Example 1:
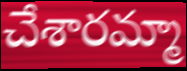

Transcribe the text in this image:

చేశారమ్మా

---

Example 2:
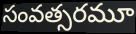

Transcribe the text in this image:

సంవత్సరమూ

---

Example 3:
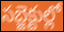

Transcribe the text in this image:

సబ్జెక్టుల్లో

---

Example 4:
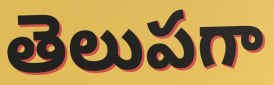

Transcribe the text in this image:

తెలుపగా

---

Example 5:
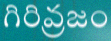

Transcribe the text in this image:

గిరివ్రజం